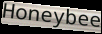
Honeybee